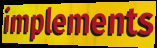
implements